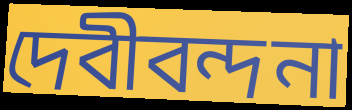
দেবীবন্দনা